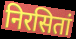
निरसितां